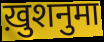
ख़ुशनुमा